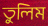
তুলিম